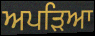
ਅਪੜਿਆ